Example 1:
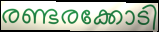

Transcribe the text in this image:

രണ്ടരക്കോടി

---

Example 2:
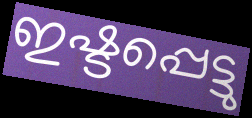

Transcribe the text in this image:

ഇഷ്ടപ്പെട്ടു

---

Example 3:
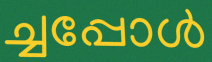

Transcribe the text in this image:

ച്ചപ്പോൾ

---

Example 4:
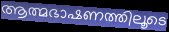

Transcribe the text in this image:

ആത്മഭാഷണത്തിലൂടെ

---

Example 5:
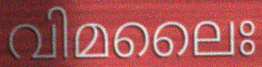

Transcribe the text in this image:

വിമലൈഃ